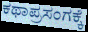
ಕಥಾಪ್ರಸಂಗಕ್ಕೆ